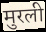
मुरली